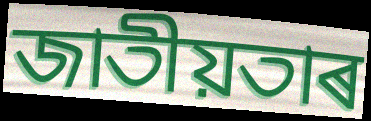
জাতীয়তাৰ